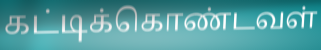
கட்டிக்கொண்டவள்